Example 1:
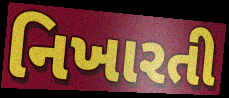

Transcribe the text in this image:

નિખારતી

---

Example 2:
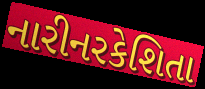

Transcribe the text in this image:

નારીનરકેશિતા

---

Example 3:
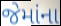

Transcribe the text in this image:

જેમાંના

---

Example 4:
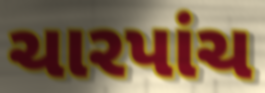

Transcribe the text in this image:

ચારપાંચ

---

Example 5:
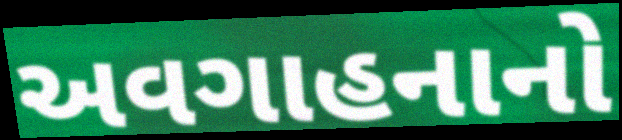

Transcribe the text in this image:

અવગાહનાનો